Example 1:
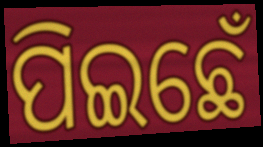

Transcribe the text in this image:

ପିଇଛେଁ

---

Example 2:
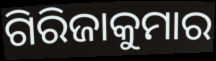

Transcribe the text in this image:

ଗିରିଜାକୁମାର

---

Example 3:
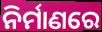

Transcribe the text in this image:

ନିର୍ମାଣରେ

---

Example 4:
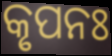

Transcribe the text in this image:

କୃପନଃ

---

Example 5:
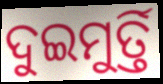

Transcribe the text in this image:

ଦୁଇମୁର୍ତ୍ତି